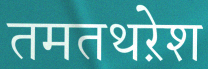
तमतथऱेश